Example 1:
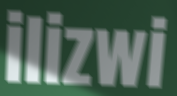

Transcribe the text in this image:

ilizwi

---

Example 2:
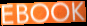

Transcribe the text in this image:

EBOOK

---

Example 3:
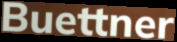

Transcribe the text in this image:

Buettner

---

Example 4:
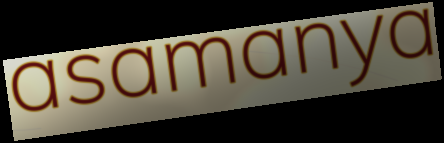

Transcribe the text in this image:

asamanya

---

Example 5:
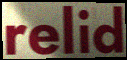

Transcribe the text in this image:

relid